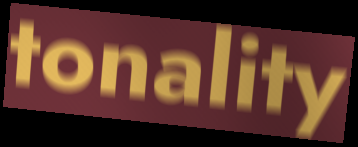
tonality